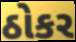
ઠોકર